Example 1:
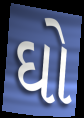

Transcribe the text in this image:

ઘો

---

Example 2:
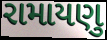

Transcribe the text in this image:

રામાયણુ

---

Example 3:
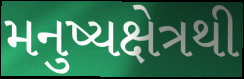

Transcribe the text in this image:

મનુષ્યક્ષેત્રથી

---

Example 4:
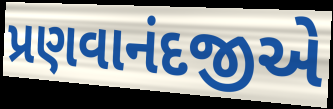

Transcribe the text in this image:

પ્રણવાનંદજીએ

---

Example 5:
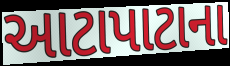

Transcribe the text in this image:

આટાપાટાના